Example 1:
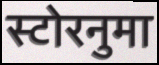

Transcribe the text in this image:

स्टोरनुमा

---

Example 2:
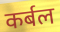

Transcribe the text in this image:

कर्बल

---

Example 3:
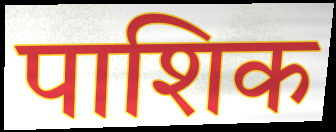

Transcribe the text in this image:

पाशिक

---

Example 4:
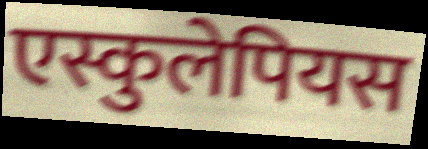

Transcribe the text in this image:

एस्कुलेपियस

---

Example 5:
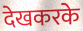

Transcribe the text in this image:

देखकरके